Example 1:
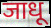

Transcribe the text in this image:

जाधू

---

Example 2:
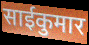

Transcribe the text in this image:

साईकुमार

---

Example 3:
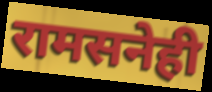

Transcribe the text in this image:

रामसनेही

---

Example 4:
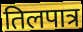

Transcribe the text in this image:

तिलपात्र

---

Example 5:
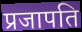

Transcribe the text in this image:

प्रजापति